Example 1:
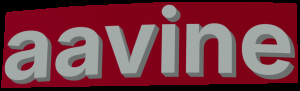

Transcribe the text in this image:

aavine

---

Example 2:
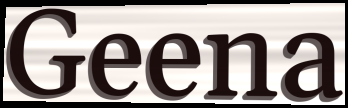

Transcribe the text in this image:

Geena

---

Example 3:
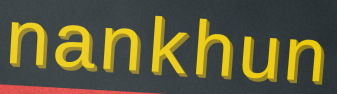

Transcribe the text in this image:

nankhun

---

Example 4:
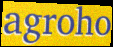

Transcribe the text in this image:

agroho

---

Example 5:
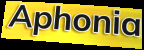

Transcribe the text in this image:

Aphonia